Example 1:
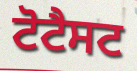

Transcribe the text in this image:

ਟੋਟੈਸਟ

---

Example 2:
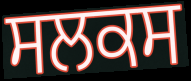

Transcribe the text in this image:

ਸਲਕਸ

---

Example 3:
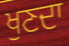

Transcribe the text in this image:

ਖੁਣਦਾ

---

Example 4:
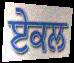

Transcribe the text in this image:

ਏਕਲ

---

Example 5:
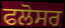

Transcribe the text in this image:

ਫਲੋਸਰ